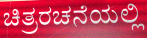
ಚಿತ್ರರಚನೆಯಲ್ಲಿ